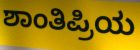
ಶಾಂತಿಪ್ರಿಯ